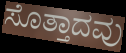
ಸೊತ್ತಾದವು